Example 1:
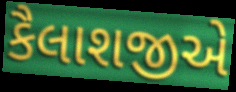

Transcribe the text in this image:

કૈલાશજીએ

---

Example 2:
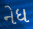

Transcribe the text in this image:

નેધ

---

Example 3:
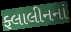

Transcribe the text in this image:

ફ્લાલીનનાં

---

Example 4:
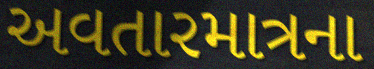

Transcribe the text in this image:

અવતારમાત્રના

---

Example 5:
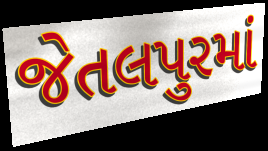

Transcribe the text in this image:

જેતલપુરમાં